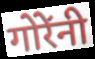
गोरेंनी